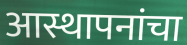
आस्थापनांचा